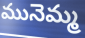
మునెమ్మ